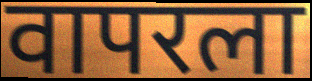
वापरला